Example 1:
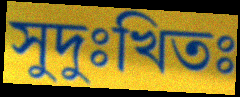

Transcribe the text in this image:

সুদুঃখিতঃ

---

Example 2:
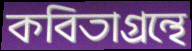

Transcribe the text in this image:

কবিতাগ্রন্থে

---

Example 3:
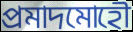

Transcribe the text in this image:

প্রমাদমোহৌ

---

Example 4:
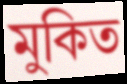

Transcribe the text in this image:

মুকিত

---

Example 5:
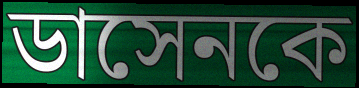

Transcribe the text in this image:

ডাসেনকে